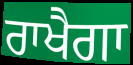
ਰਾਖੈਗਾ